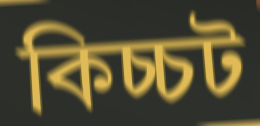
কিচ্চট